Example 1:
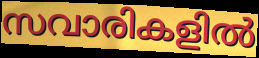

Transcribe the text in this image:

സവാരികളിൽ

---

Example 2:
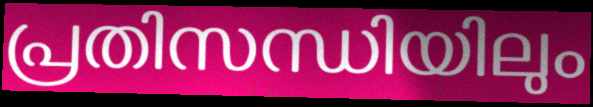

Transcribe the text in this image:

പ്രതിസന്ധിയിലും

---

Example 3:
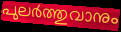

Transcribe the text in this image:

പുലർത്തുവാനും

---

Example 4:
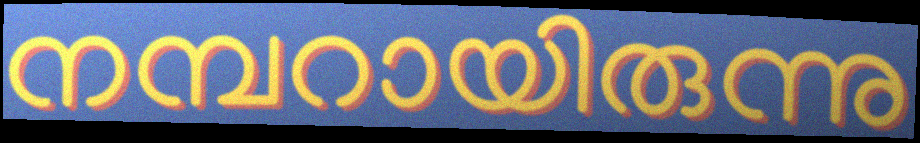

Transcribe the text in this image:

നമ്പറായിരുന്നു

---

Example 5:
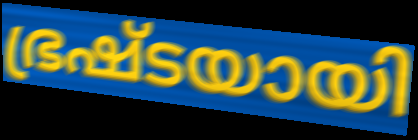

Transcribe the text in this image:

ഭ്രഷ്ടയായി